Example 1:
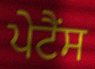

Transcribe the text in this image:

ਪੇਟੈਂਸ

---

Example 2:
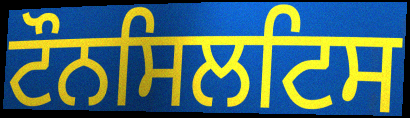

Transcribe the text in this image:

ਟੌਨਸਿਲਟਿਸ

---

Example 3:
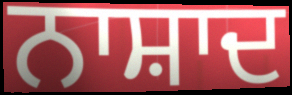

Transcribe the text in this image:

ਨਾਸ਼ਾਦ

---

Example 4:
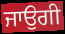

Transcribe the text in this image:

ਜਾਉਗੀ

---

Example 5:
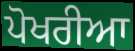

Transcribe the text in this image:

ਪੋਖਰੀਆ